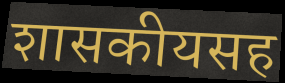
शासकीयसह